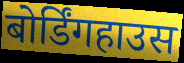
बोर्डिंगहाउस